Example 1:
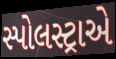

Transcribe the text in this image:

સ્પોલસ્ટ્રાએ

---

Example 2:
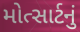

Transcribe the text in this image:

મોત્સાર્ટનું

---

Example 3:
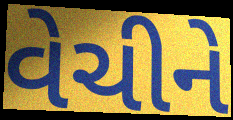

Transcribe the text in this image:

વેચીને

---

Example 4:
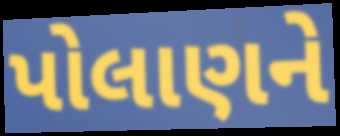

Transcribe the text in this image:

પોલાણને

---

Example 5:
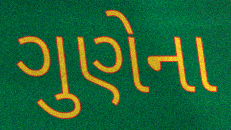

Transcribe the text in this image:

ગુણેના